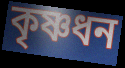
কৃষ্ণধন